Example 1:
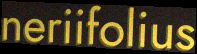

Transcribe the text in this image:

neriifolius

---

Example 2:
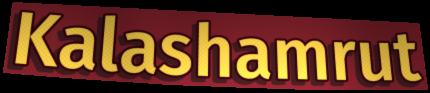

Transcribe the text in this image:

Kalashamrut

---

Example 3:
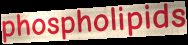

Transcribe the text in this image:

phospholipids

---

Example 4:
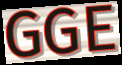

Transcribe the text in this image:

GGE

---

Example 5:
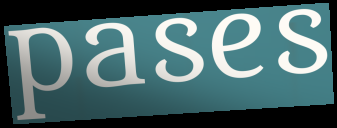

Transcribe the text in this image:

pases